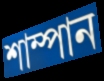
শাম্পান